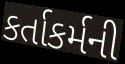
કર્તાકર્મની